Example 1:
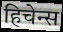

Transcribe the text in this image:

हिचेन्स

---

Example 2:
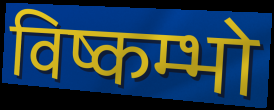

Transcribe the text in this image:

विष्कम्भो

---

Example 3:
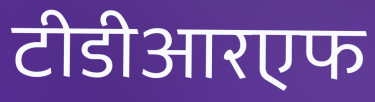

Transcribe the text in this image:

टीडीआरएफ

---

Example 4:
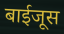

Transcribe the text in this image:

बाईजूस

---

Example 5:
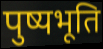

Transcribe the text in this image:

पुष्यभूति